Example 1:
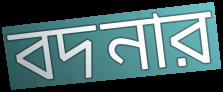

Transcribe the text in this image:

বদনার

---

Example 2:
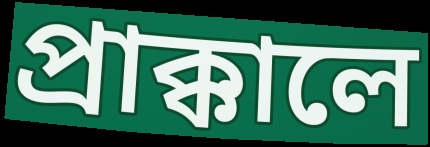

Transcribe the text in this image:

প্রাক্কালে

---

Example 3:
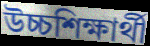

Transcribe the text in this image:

উচ্চশিক্ষার্থী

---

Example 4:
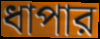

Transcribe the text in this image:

ধাপার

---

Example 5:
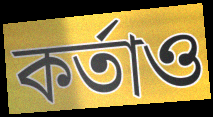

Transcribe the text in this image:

কর্তাও